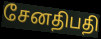
சேனதிபதி